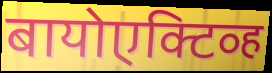
बायोएक्टिव्ह